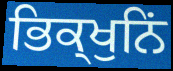
ਭਿਕ੍ਖੁਨਿਂ